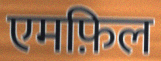
एमफ़िल